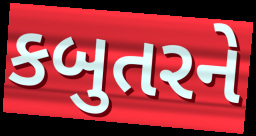
કબુતરને